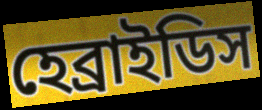
হেব্রাইডিস